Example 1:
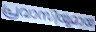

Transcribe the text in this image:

പ്രവാസിയുമായ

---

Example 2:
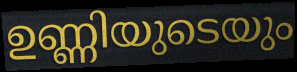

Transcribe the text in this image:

ഉണ്ണിയുടെയും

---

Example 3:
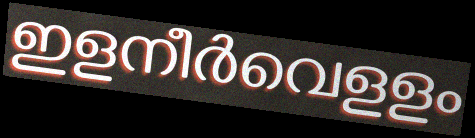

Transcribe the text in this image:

ഇളനീർവെളളം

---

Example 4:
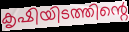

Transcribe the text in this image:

കൃഷിയിടത്തിന്റെ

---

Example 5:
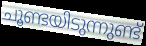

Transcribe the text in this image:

ചൂണ്ടയിടുന്നുണ്ട്